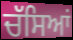
ਚੱਸਿਆਂ